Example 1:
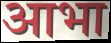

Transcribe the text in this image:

आभा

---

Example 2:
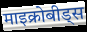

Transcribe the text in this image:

माइक्रोबीड्स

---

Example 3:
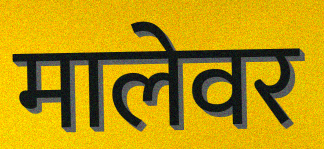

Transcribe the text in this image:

मालेवर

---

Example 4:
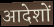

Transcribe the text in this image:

आदेशों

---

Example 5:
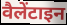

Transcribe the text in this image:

वैलेंटाइन